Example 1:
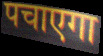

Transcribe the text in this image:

पचाएगा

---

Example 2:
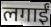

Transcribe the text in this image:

लगाईं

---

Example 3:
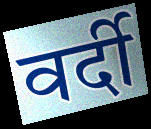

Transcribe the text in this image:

वर्दी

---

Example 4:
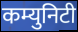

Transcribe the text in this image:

कम्युनिटी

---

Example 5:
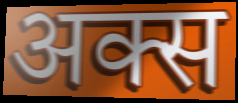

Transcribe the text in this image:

अक्स